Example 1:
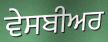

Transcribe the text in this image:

ਵੇਸਬੀਅਰ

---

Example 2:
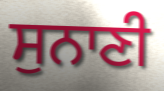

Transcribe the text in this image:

ਸੁਨਾਣੀ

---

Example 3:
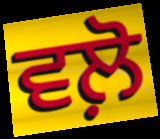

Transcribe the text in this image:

ਵਲ਼ੋ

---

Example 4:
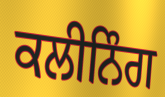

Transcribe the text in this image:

ਕਲੀਨਿੰਗ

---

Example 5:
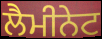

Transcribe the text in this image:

ਲੈਮੀਨੇਟ